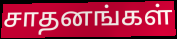
சாதனங்கள்